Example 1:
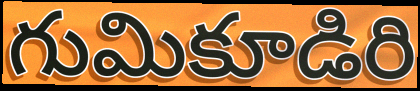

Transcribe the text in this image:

గుమికూడిరి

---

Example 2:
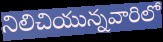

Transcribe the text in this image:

నిలిచియున్నవారిలో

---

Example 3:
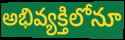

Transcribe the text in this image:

అభివ్యక్తిలోనూ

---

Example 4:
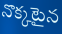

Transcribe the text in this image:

నొక్కటైన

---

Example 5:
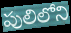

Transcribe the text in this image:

పులిలోని